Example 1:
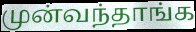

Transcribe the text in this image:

முன்வந்தாங்க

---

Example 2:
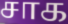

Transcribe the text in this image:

சாக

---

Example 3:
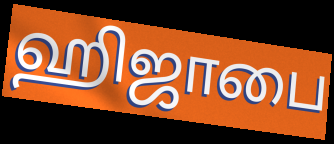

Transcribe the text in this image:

ஹிஜாபை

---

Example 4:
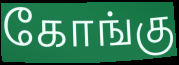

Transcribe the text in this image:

கோங்கு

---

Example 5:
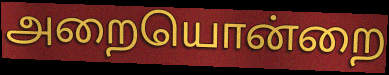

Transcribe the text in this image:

அறையொன்றை